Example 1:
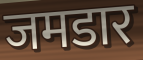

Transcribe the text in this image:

जमडार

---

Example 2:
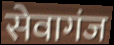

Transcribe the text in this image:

सेवागंज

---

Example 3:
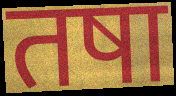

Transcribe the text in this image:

तषा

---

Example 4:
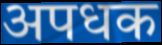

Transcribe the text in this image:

अपधक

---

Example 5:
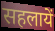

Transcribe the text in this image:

सहलायें